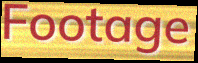
Footage